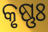
କୃଷ୍ଣଃ